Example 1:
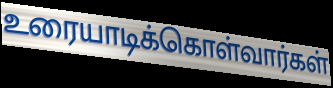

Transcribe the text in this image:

உரையாடிக்கொள்வார்கள்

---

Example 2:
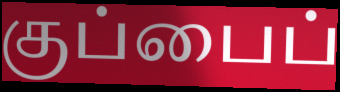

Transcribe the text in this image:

குப்பைப்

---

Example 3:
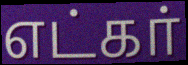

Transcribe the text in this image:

எட்கர்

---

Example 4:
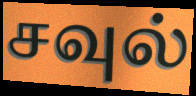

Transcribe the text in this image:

சவுல்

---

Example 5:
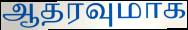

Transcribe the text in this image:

ஆதரவுமாக